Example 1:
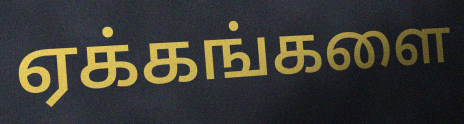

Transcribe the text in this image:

ஏக்கங்களை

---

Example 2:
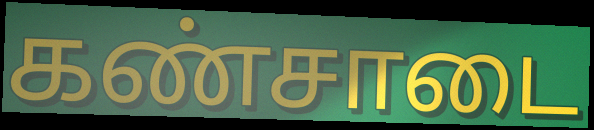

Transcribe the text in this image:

கண்சாடை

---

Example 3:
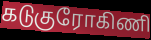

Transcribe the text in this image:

கடுகுரோகிணி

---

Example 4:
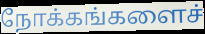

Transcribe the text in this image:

நோக்கங்களைச்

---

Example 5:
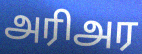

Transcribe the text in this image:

அரிஅர